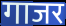
गाजर